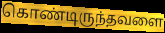
கொண்டிருந்தவளை